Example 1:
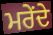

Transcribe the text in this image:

ਮਰੇਂਦੇ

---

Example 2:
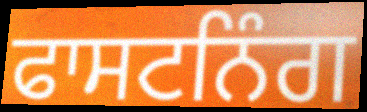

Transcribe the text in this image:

ਫਾਸਟਨਿੰਗ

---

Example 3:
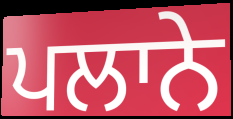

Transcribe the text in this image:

ਪਲਾਨੇ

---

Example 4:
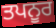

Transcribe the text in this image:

ਤਪਨੂਰ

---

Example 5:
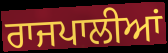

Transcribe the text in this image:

ਰਾਜਪਾਲੀਆਂ